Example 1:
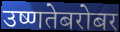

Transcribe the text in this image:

उष्णतेबरोबर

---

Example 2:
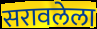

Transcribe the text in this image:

सरावलेला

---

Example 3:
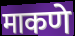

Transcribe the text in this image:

माकणे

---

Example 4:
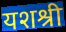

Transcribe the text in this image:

यशश्री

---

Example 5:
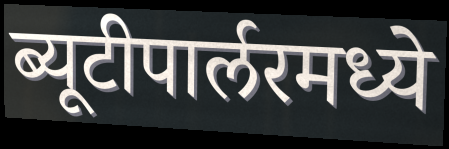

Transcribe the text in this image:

ब्यूटीपार्लरमध्ये